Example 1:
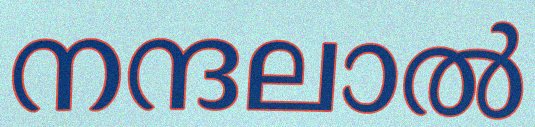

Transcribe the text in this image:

നന്ദലാൽ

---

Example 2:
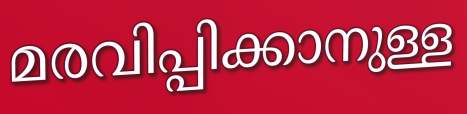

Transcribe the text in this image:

മരവിപ്പിക്കാനുള്ള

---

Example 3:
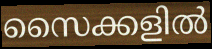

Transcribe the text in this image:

സൈക്കളിൽ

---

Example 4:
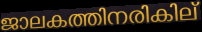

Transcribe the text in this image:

ജാലകത്തിനരികില്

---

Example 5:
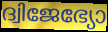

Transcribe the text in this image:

ദ്വിജേഭ്യോ